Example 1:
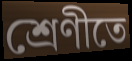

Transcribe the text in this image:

শ্রেণীতে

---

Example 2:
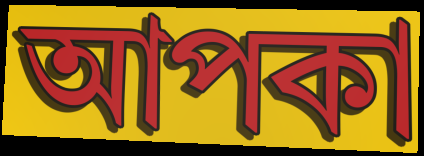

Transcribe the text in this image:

আপকা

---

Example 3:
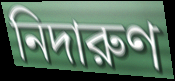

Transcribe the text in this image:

নিদারুণ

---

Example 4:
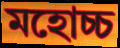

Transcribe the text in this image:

মহোচ্চ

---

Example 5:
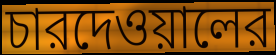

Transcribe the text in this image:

চারদেওয়ালের